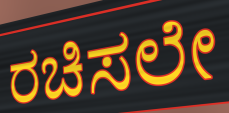
ರಚಿಸಲೇ